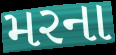
મરના